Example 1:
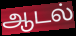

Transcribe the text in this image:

ஆடல்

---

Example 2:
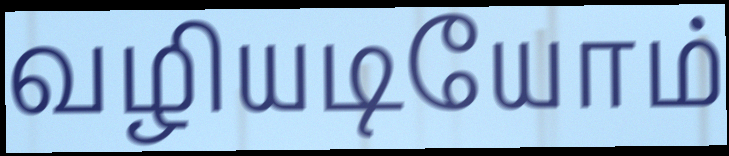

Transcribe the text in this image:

வழியடியோம்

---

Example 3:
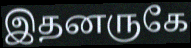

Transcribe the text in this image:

இதனருகே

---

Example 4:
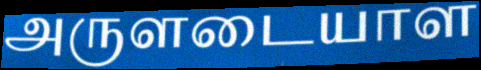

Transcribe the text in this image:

அருளடையாள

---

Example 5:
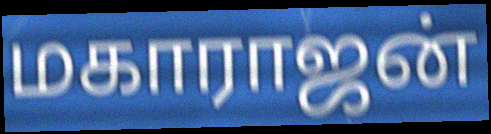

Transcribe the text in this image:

மகாராஜன்